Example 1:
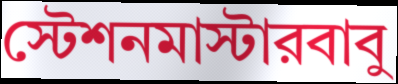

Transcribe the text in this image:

স্টেশনমাস্টারবাবু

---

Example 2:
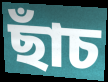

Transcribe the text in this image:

ছাঁচ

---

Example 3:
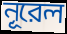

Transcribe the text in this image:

নূরেল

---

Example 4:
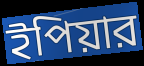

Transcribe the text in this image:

ইপিয়ার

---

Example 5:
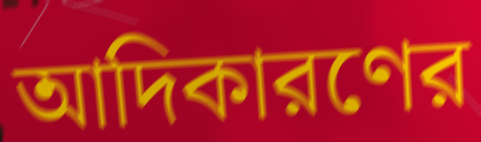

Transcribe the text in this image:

আদিকারণের